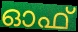
ഓഫ്